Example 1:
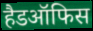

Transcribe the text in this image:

हैडऑफिस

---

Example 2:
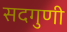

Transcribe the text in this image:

सदगुणी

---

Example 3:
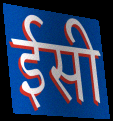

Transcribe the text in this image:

ईसी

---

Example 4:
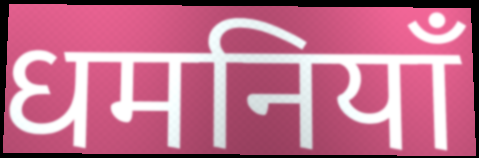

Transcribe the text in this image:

धमनियाँ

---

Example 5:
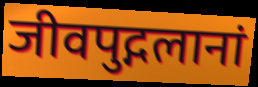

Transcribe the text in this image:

जीवपुद्गलानां